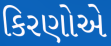
કિરણોએ